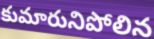
కుమారునిపోలిన